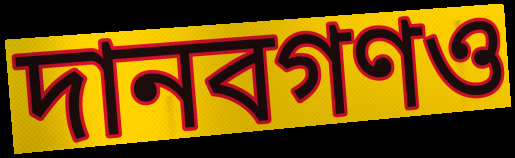
দানবগণও